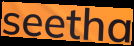
seetha